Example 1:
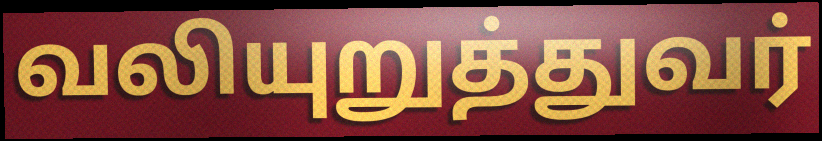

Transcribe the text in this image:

வலியுறுத்துவர்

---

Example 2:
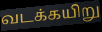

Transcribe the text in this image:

வடக்கயிறு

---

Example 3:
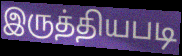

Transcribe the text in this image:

இருத்தியபடி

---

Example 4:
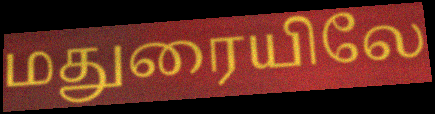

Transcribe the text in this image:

மதுரையிலே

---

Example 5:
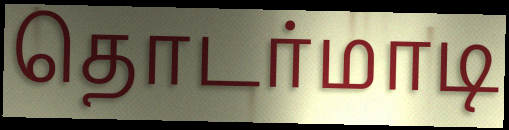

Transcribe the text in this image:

தொடர்மாடி